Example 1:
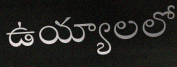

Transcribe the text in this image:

ఉయ్యాలలో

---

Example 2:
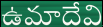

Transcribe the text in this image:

ఉమాదేవి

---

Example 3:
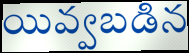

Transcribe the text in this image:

యివ్వబడిన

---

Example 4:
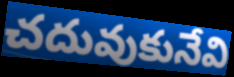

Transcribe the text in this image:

చదువుకునేవి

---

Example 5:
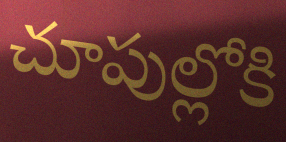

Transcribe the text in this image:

చూపుల్లోకి